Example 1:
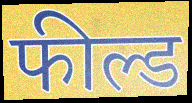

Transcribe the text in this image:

फील्ड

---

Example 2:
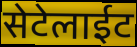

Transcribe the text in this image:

सेटेलाईट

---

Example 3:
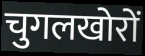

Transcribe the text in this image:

चुगलखोरों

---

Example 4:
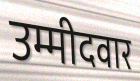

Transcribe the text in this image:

उम्मीदवार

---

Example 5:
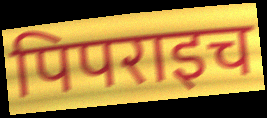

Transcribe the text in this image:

पिपराइच